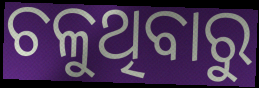
ଚଳୁଥିବାରୁ